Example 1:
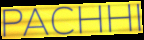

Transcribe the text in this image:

PACHHI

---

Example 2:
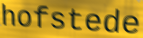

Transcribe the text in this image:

hofstede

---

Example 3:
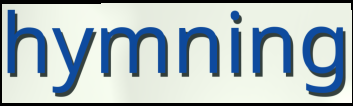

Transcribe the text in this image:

hymning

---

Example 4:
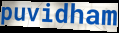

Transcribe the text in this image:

puvidham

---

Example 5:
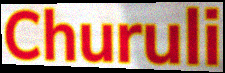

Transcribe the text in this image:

Churuli